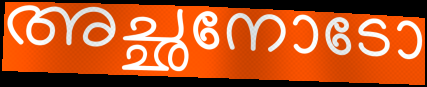
അച്ഛനോടോ